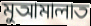
মুআমালাত